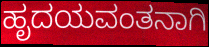
ಹೃದಯವಂತನಾಗಿ